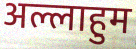
अल्लाहुम